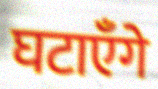
घटाएँगे